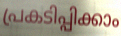
പ്രകടിപ്പിക്കാം